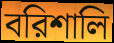
বরিশালি